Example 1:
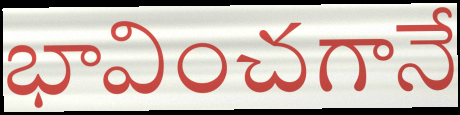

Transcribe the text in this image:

భావించగానే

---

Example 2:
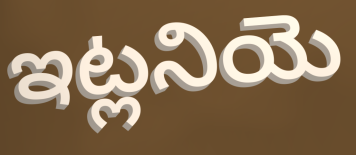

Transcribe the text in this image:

ఇట్లనియె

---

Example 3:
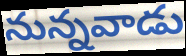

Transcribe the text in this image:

నున్నవాడు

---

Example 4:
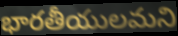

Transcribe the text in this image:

భారతీయులమని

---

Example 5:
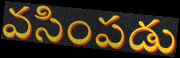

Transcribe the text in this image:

వసింపడు